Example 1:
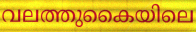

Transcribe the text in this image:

വലത്തുകൈയിലെ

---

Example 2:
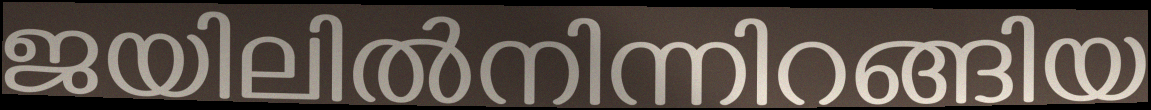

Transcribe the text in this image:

ജയിലിൽനിന്നിറങ്ങിയ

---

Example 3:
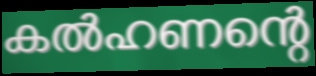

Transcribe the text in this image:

കൽഹണന്റെ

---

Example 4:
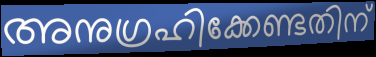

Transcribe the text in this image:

അനുഗ്രഹിക്കേണ്ടതിന്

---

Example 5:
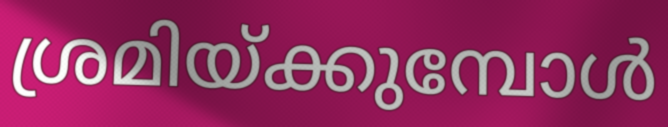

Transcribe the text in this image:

ശ്രമിയ്ക്കുമ്പോൾ